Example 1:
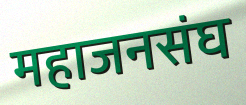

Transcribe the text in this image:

महाजनसंघ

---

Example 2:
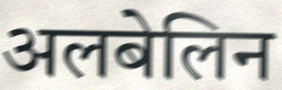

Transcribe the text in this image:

अलबेलिन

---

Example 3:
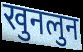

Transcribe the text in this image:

खुनलुन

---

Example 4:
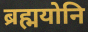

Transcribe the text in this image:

ब्रह्मयोनि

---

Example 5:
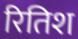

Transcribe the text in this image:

रितिश